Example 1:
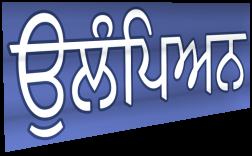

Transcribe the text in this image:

ਉਲੰਪਿਅਨ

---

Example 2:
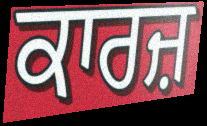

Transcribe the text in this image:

ਕਾਰਜ਼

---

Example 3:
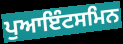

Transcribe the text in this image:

ਪੁਆਇੰਟਸਮਿਨ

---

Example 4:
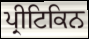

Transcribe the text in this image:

ਪ੍ਰੀਟਿਕਿਨ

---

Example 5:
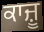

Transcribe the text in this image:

ਕਾਜ਼ੂ